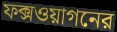
ফক্সওয়াগনের